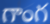
గాంగ